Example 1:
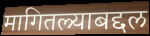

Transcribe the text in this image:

मागितल्याबद्दल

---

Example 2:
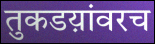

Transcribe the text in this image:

तुकडय़ांवरच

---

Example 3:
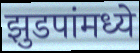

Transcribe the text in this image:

झुडपांमध्ये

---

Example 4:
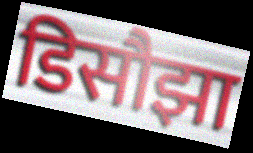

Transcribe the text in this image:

डिसौझा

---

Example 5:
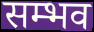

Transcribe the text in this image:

सम्भव